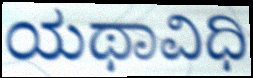
ಯಥಾವಿಧಿ